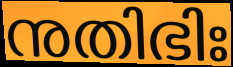
നുതിഭിഃ